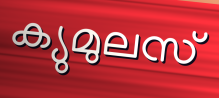
ക്യുമുലസ്